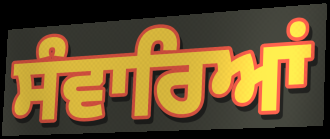
ਸੰਵਾਰਿਆਂ